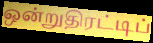
ஒன்றுதிரட்டிப்